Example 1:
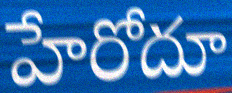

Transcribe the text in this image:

హేరోదూ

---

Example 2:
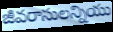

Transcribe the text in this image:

జీవరాసులన్నియు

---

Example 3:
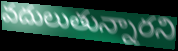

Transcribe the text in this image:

వదులుతున్నారని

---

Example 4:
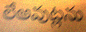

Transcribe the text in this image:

లేఅవుట్లను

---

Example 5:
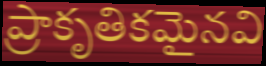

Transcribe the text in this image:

ప్రాకృతికమైనవి